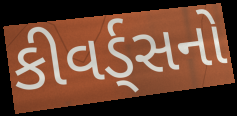
કીવર્ડ્સનો